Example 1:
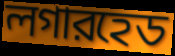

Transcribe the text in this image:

লগারহেড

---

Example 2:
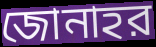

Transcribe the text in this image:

জোনাহর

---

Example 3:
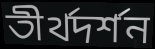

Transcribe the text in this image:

তীর্থদর্শন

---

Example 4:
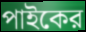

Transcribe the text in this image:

পাইকের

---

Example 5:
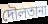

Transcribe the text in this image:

দৌলতানা